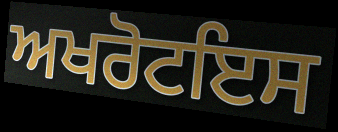
ਅਖਰੋਟਇਸ